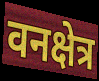
वनक्षेत्र